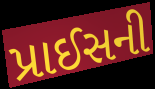
પ્રાઈસની